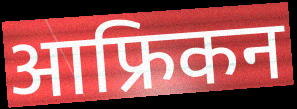
आफ्रिकन